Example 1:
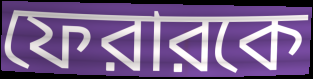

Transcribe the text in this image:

ফেরারকে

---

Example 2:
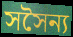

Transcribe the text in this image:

সসৈন্য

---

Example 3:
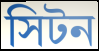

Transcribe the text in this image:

সিটন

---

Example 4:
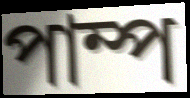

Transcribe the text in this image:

পাম্প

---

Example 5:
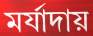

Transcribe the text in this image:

মর্যাদায়